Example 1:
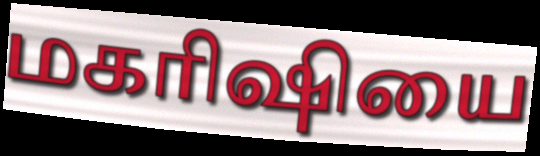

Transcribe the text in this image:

மகரிஷியை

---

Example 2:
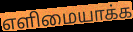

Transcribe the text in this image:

எளிமையாக்க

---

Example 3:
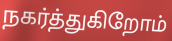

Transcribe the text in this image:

நகர்த்துகிறோம்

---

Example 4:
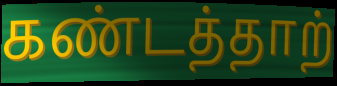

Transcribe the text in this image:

கண்டத்தாற்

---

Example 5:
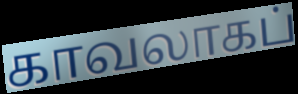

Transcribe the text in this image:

காவலாகப்